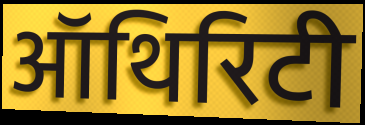
ऑथिरिटी